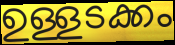
ഉള്ളടക്കം